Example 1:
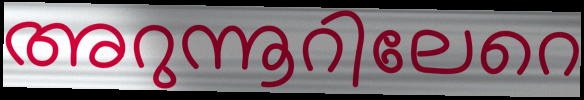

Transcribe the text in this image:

അറുന്നൂറിലേറെ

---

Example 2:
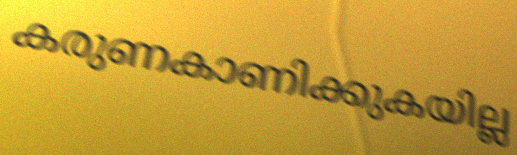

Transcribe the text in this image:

കരുണകാണിക്കുകയില്ല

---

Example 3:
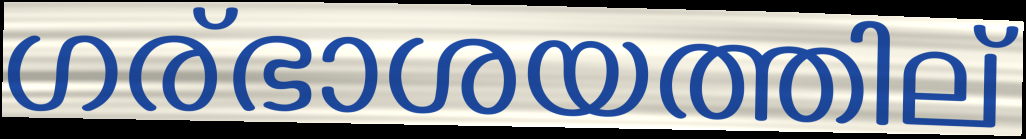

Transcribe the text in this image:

ഗര്ഭാശയത്തില്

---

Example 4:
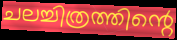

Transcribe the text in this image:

ചലച്ചിത്രത്തിന്റെ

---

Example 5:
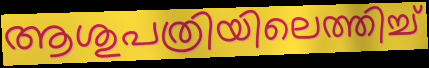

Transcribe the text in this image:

ആശുപത്രിയിലെത്തിച്ച്